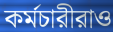
কর্মচারীরাও